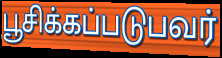
பூசிக்கப்படுபவர்